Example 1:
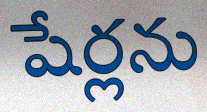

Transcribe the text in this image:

షేర్లను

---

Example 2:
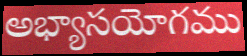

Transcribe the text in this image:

అభ్యాసయోగము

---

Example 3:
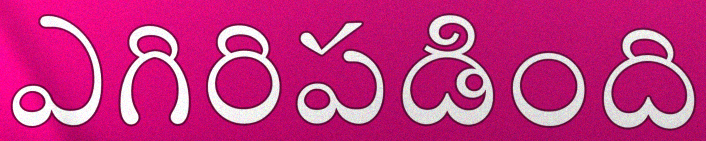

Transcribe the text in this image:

ఎగిరిపడింది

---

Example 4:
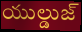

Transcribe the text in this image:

యుల్డుజ్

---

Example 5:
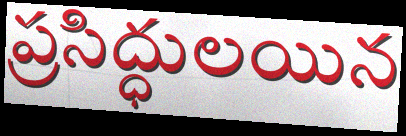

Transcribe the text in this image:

ప్రసిద్ధులయిన